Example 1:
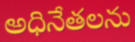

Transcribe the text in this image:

అధినేతలను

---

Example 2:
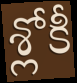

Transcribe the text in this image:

శ్లోకీ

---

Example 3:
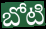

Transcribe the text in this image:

బోటి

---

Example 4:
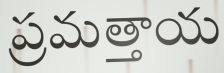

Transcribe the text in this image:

ప్రమత్తాయ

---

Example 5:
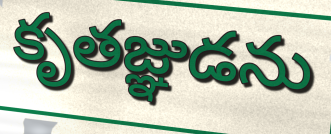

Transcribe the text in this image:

కృతజ్ఞుడను